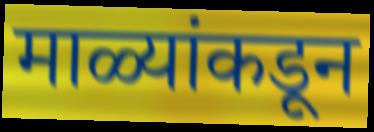
माळ्यांकडून